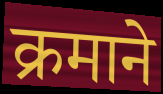
क्रमाने